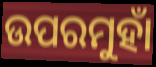
ଉପରମୁହାଁ